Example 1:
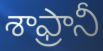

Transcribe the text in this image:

శాఫ్రానీ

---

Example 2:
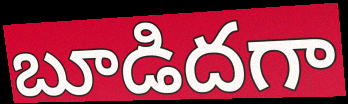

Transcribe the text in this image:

బూడిదగా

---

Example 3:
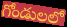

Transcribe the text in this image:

గోండులలో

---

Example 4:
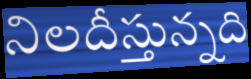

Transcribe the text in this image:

నిలదీస్తున్నది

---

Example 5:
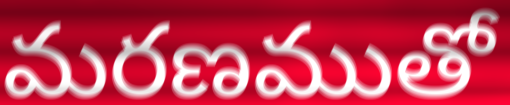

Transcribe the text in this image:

మరణముతో